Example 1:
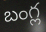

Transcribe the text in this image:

బంగ్ల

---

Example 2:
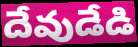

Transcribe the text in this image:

దేవుడేడి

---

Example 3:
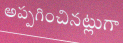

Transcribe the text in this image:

అప్పగించినట్లుగా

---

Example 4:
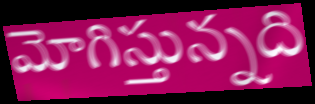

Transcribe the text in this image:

మోగిస్తున్నది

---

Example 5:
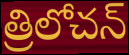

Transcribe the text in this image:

త్రిలోచన్